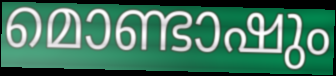
മൊണ്ടാഷും